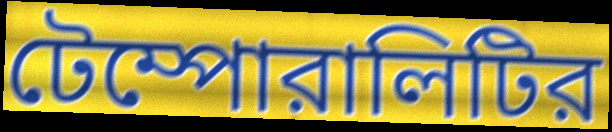
টেম্পোরালিটির